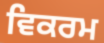
ਵਿਕਰਮ